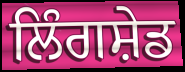
ਲਿੰਗਸ਼ੇਡ